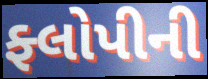
ફ્લોપીની